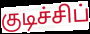
குடிச்சிப்